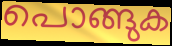
പൊങ്ങുക